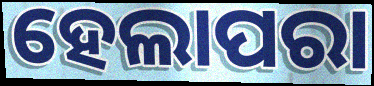
ହେଲାପରା